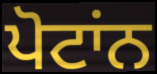
ਪੋਟਾਂਨ